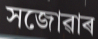
সজোৱাৰ